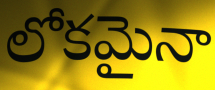
లోకమైనా